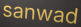
sanwad